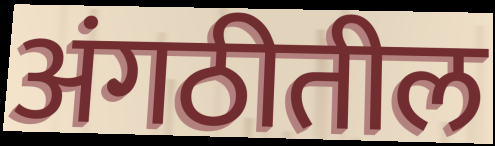
अंगठीतील